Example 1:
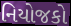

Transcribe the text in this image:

નિયોજકો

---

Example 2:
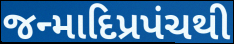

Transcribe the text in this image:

જન્માદિપ્રપંચથી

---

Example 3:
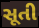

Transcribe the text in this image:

સૂતી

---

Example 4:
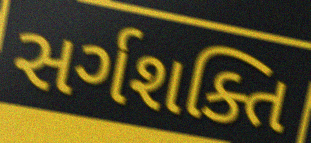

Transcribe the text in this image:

સર્ગશક્તિ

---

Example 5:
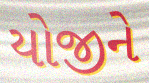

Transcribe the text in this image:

યોજીને